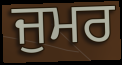
ਜੁਮਰ